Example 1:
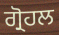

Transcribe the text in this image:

ਗ੍ਰੋਹਲ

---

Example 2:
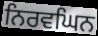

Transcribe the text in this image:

ਨਿਰਵਘਿਨ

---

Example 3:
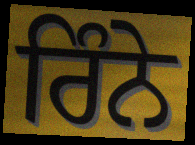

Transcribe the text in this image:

ਰਿੰਨੇ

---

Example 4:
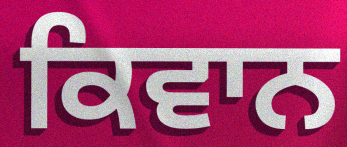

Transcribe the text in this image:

ਕਿਵਾਨ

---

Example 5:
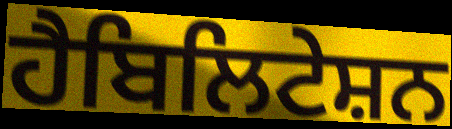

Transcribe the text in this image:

ਹੈਬਿਲਿਟੇਸ਼ਨ